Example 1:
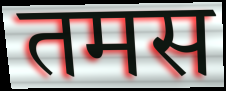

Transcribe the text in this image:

तमस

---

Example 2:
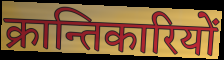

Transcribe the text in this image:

क्रान्तिकारियों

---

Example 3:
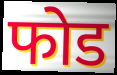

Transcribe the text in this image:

फोड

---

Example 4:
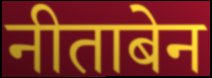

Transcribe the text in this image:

नीताबेन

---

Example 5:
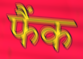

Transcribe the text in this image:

फैंक